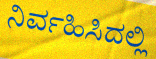
ನಿರ್ವಹಿಸಿದಲ್ಲಿ